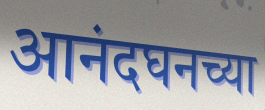
आनंदघनच्या